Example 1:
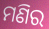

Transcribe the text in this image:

ମଣିର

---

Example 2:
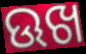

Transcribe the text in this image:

ଊଖ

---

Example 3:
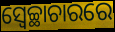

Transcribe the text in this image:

ସ୍ବେଚ୍ଛାଚାରରେ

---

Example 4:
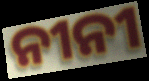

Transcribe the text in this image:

ନୀନୀ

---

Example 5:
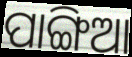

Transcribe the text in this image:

ପାଙ୍ଗିଆ